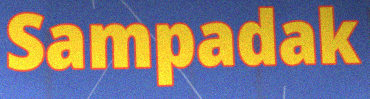
Sampadak